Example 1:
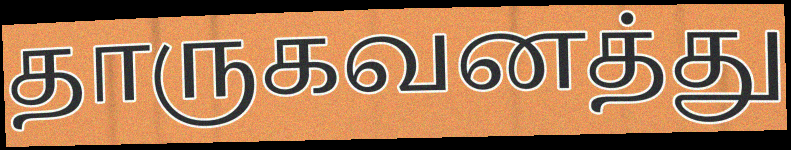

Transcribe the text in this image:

தாருகவனத்து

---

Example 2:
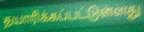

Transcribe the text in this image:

தயாரிக்கப்பட்டுள்ளது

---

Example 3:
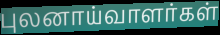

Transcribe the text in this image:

புலனாய்வாளர்கள்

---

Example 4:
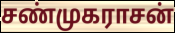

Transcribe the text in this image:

சண்முகராசன்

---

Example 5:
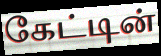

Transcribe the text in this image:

கேட்டின்